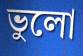
ভুলো